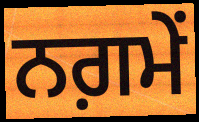
ਨਗ਼ਮੇਂ